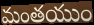
మంతయుం